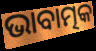
ଭାବାତ୍ମକ